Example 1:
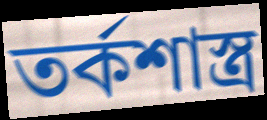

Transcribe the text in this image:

তর্কশাস্ত্র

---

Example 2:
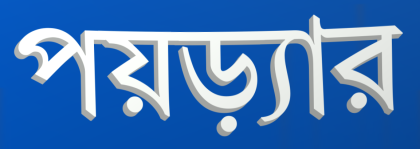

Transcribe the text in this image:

পয়ড়্যার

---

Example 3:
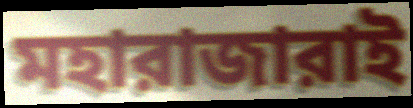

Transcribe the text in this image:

মহারাজারাই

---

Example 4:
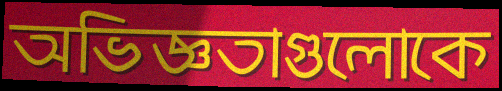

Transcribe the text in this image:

অভিজ্ঞতাগুলোকে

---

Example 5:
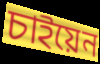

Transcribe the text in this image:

চাইয়েন